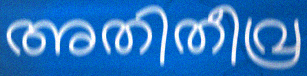
അതിതീവ്ര